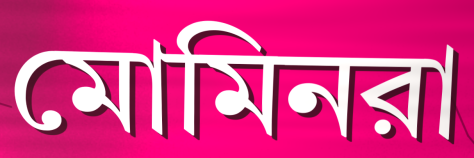
মোমিনরা